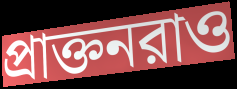
প্রাক্তনরাও